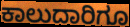
ಕಾಲುದಾರಿಗೂ